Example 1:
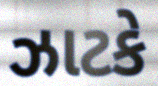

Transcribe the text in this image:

ઝાટકે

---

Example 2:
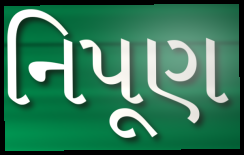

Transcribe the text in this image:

નિપૂણ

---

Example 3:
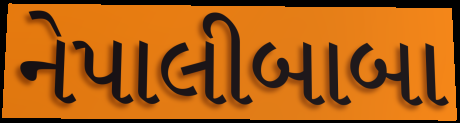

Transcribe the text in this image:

નેપાલીબાબા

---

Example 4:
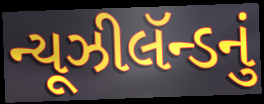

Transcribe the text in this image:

ન્યૂઝીલૅન્ડનું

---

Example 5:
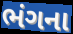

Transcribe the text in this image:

ભંગના